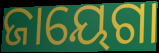
ଜାୟେଗା